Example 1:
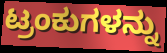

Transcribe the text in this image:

ಟ್ರಂಕುಗಳನ್ನು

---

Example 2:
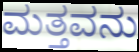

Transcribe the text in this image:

ಮತ್ತವನು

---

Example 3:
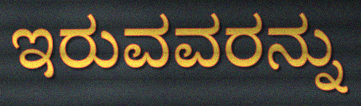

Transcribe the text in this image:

ಇರುವವರನ್ನು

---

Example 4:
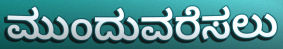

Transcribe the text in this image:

ಮುಂದುವರೆಸಲು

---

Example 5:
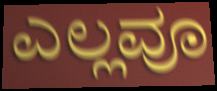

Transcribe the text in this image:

ಎಲ್ಲವೂ